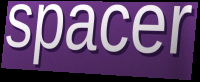
spacer